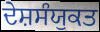
ਦੇਸ਼ਸੰਯੁਕਤ